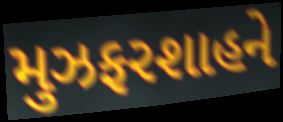
મુઝફરશાહને